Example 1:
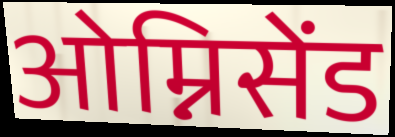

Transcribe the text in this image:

ओम्निसेंड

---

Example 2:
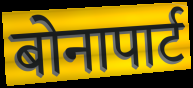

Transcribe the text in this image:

बोनापार्ट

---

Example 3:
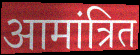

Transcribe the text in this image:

आमांत्रित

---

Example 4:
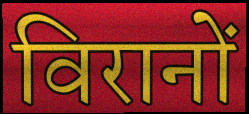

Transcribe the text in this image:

विरानों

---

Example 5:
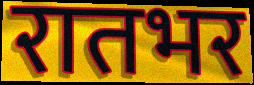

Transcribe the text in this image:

रातभर